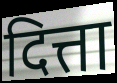
दित्ता